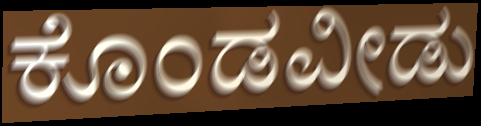
ಕೊಂಡವೀಡು